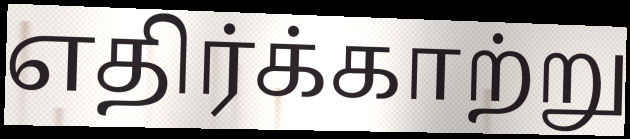
எதிர்க்காற்று